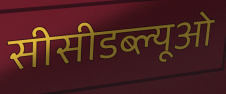
सीसीडब्ल्यूओ